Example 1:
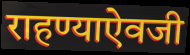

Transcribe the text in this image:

राहण्याऐवजी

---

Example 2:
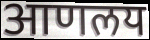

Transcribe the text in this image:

आणलय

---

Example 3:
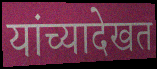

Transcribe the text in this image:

यांच्यादेखत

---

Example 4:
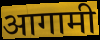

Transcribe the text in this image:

आगामी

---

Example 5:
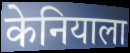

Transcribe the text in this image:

केनियाला